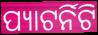
ପ୍ୟାଟର୍ନିଟି